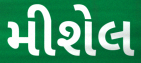
મીશેલ